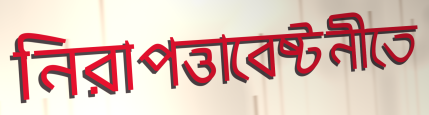
নিরাপত্তাবেষ্টনীতে